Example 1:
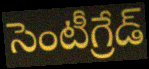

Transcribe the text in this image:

సెంటీగ్రేడ్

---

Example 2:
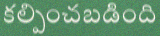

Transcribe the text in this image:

కల్పించబడింది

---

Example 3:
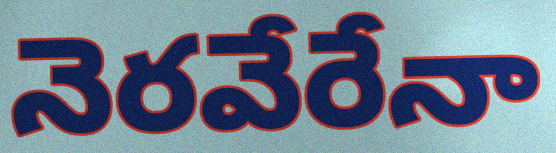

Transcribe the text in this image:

నెరవేరేనా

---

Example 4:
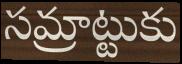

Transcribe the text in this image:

సమ్రాట్టుకు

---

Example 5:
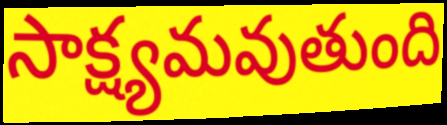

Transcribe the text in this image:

సాక్ష్యమవుతుంది